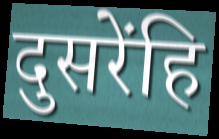
दुसरेंहि